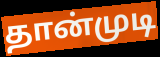
தான்முடி